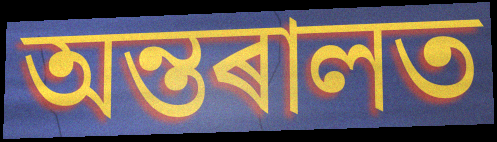
অন্তৰালত